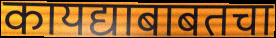
कायद्याबाबतचा